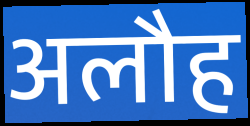
अलौह